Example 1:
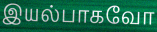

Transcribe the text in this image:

இயல்பாகவோ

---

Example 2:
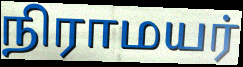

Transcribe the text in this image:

நிராமயர்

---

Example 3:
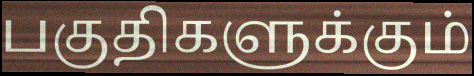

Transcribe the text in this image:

பகுதிகளுக்கும்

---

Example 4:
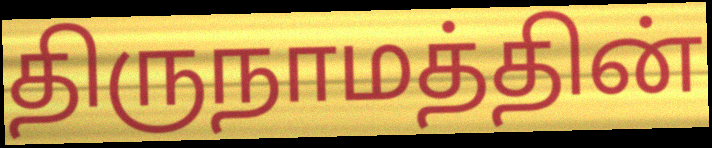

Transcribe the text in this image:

திருநாமத்தின்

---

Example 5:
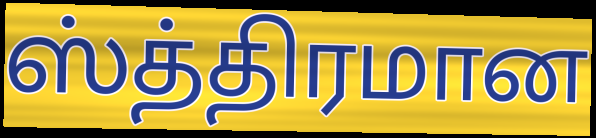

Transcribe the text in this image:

ஸ்த்திரமான